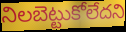
నిలబెట్టుకోలేదని